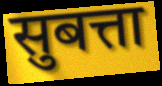
सुबत्ता